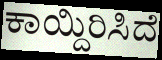
ಕಾಯ್ದಿರಿಸಿದೆ